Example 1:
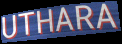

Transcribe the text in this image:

UTHARA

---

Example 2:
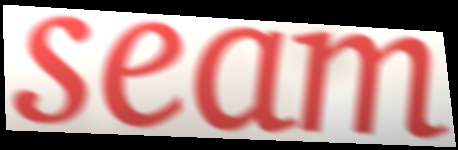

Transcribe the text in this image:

seam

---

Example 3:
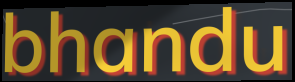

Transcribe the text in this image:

bhandu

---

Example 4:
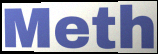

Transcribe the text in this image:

Meth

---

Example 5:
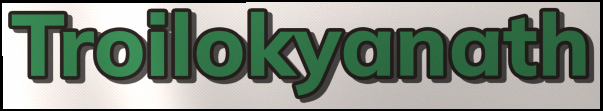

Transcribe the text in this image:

Troilokyanath